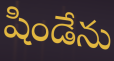
షిండేను